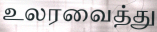
உலரவைத்து